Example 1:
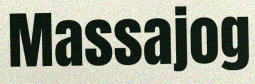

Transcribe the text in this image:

Massajog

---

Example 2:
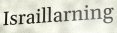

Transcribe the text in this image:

Israillarning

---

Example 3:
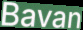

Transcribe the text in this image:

Bavan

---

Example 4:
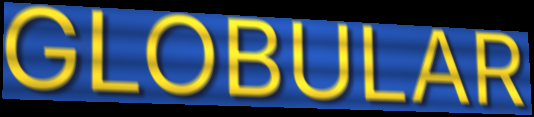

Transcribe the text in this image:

GLOBULAR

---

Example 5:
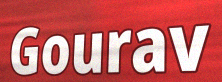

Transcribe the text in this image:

Gourav